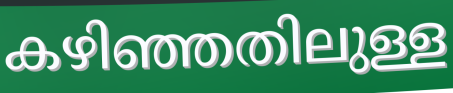
കഴിഞ്ഞതിലുള്ള